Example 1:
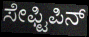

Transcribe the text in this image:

ಸೇಫ್ಟಿಪಿನ್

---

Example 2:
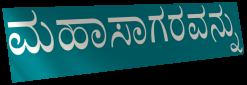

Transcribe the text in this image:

ಮಹಾಸಾಗರವನ್ನು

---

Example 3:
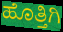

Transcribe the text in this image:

ಹೊತ್ತಿಗಿ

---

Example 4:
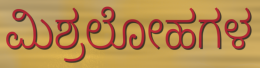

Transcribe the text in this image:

ಮಿಶ್ರಲೋಹಗಳ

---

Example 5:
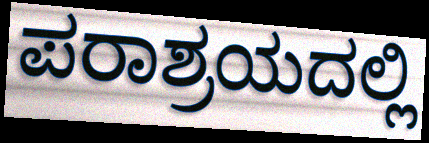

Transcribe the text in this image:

ಪರಾಶ್ರಯದಲ್ಲಿ